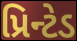
પ્રિન્ટેડ